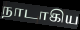
நாடாகிய